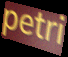
petri